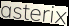
asterix